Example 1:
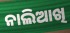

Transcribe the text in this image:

ନାଲିଆଖି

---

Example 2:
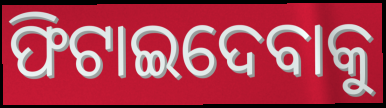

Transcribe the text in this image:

ଫିଟାଇଦେବାକୁ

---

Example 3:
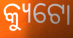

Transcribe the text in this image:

କ୍ୟୁଟୋ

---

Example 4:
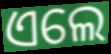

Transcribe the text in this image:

ଏଲେ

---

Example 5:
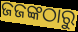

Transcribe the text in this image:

ଜଜଙ୍କଠାରୁ